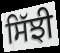
ਸਿੱਝੀ